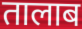
तालाब